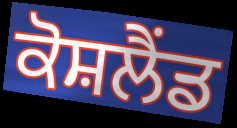
ਕੋਸ਼ਲੈਂਡ